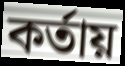
কর্তায়